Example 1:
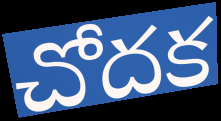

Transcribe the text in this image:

చోదక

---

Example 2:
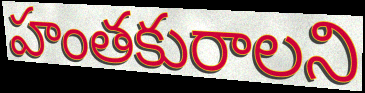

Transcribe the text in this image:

హంతకురాలని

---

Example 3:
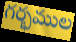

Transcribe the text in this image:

గర్భముల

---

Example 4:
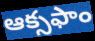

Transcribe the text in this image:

ఆక్సఫాం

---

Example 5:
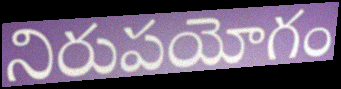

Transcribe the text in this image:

నిరుపయోగం